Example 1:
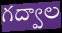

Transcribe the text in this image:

గద్వాల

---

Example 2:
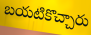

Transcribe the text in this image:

బయటికొచ్చారు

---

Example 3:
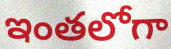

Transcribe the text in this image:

ఇంతలోగా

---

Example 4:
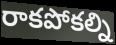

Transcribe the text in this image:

రాకపోకల్ని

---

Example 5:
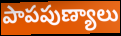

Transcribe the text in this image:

పాపపుణ్యాలు